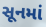
સૂનમાં